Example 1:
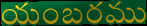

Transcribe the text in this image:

యంబరము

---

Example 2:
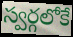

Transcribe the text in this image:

స్వర్గలోకే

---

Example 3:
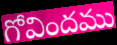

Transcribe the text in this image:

గోవిందము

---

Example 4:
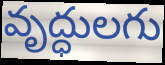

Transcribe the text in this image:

వృద్ధులగు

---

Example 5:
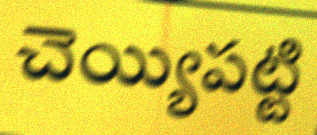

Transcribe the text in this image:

చెయ్యిపట్టి